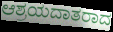
ಆಶ್ರಯದಾತರಾದ